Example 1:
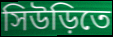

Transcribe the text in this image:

সিউড়িতে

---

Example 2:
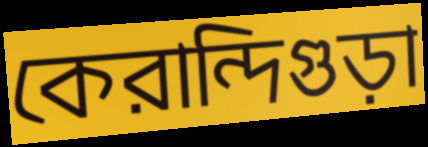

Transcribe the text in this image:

কেরান্দিগুড়া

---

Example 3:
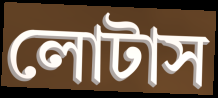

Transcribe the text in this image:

লোটাস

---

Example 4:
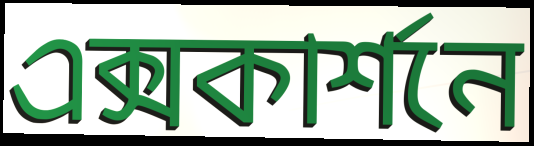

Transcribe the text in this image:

এক্সকার্শনে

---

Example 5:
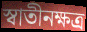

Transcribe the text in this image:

স্বাতীনক্ষত্র